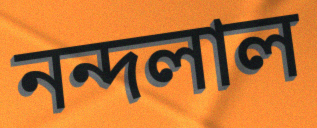
নন্দলাল